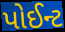
પોઈન્ટ